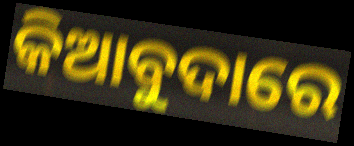
କିଆବୁଦାରେ